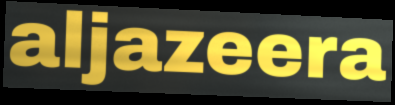
aljazeera